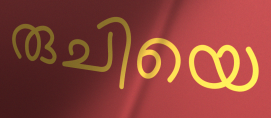
രുചിയെ